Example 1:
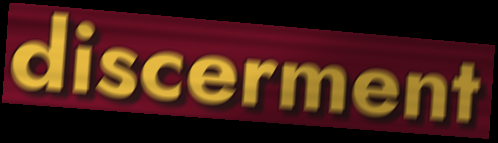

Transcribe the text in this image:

discerment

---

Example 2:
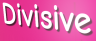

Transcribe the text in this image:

Divisive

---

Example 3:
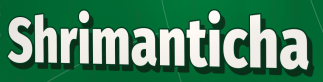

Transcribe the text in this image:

Shrimanticha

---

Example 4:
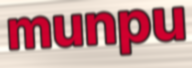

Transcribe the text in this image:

munpu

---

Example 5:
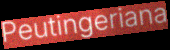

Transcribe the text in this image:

Peutingeriana